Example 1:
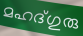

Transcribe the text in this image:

മഹദ്ഗുരു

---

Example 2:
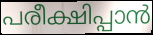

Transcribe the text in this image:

പരീക്ഷിപ്പാൻ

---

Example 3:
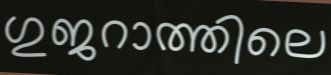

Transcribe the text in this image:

ഗുജറാത്തിലെ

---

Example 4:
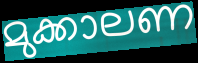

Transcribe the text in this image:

മുക്കാലണ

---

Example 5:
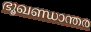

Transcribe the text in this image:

ഭൂഖണ്ഡാന്തര